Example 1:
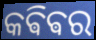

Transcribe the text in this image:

କଵିଵର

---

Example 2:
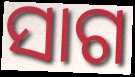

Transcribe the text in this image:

ସାଗ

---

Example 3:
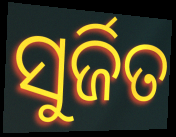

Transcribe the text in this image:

ସୁର୍ଜିତ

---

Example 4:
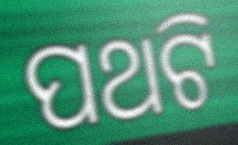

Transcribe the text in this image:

ପଥଟି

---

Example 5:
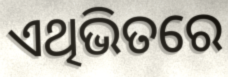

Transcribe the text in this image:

ଏଥିଭିତରେ